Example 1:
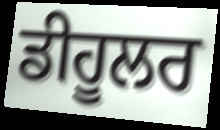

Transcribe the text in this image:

ਡੀਹੂਲਰ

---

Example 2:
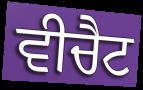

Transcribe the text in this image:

ਵੀਚੈਟ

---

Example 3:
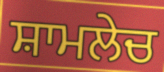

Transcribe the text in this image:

ਸ਼ਾਮਲੇਚ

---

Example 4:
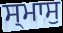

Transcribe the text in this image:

ਸ੍ਮਾਸੁ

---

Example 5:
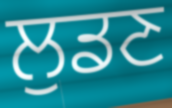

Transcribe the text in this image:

ਲੁਡਣ